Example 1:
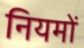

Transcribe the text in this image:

नियमों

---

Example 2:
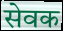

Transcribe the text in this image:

सेवक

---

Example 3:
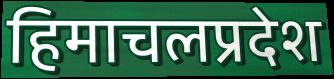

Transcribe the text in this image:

हिमाचलप्रदेश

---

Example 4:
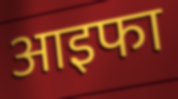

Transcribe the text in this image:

आइफा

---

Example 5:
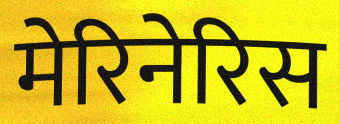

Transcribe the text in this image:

मेरिनेरिस